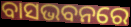
ବାସଭବନରେ